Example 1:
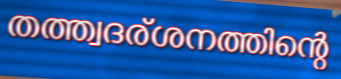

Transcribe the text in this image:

തത്ത്വദര്ശനത്തിന്റെ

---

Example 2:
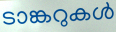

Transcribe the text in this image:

ടാങ്കറുകൾ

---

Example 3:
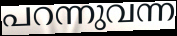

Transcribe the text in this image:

പറന്നുവന്ന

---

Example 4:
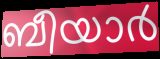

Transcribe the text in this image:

ബീയാർ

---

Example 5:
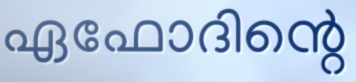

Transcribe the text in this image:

ഏഫോദിന്റെ